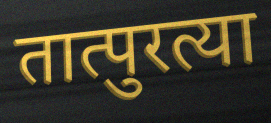
तात्पुरत्या